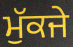
ਮੁੱਕਜੇ